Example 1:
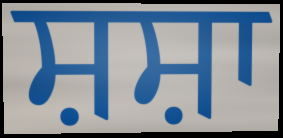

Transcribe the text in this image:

ਸ਼ਸ਼ਾ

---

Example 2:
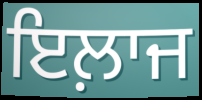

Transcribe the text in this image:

ਇਲ਼ਾਜ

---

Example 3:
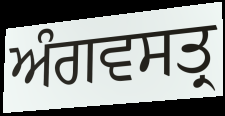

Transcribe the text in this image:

ਅੰਗਵਸਤ੍ਰ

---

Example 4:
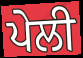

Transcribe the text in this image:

ਪੇਲੀ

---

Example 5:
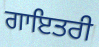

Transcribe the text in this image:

ਗਾਇਤਰੀ